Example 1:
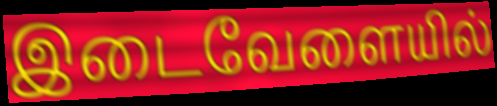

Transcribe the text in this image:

இடைவேளையில்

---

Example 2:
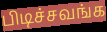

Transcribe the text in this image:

பிடிச்சவங்க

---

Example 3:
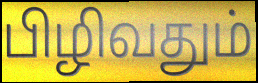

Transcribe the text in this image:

பிழிவதும்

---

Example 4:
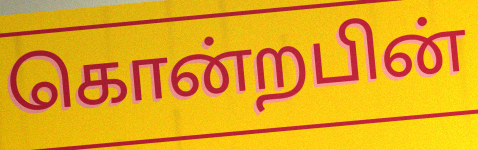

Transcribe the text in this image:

கொன்றபின்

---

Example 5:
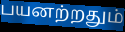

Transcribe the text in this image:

பயனற்றதும்